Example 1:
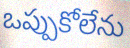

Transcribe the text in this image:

ఒప్పుకోలేను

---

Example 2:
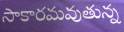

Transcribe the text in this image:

సాకారమవుతున్న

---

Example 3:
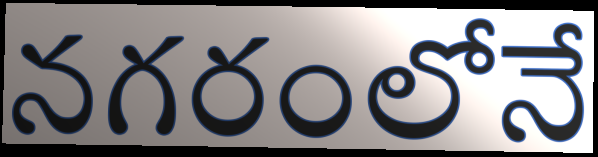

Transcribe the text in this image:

నగరంలోనే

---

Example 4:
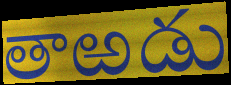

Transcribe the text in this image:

తాఱడు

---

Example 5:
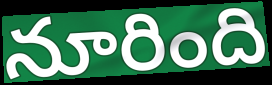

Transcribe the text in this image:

నూరింది